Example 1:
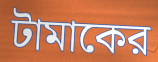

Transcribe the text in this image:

টামাকের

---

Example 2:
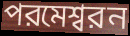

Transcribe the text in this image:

পরমেশ্বরন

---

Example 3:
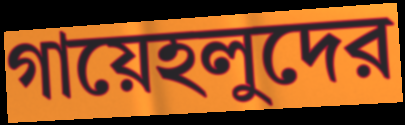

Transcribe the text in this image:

গায়েহলুদের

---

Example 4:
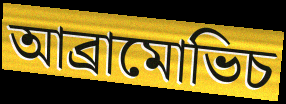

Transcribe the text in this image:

আব্রামোভিচ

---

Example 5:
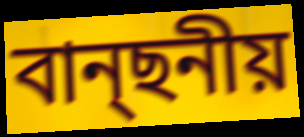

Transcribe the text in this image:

বান্ছনীয়